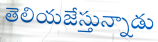
తెలియజేస్తున్నాడు